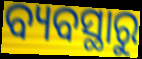
ବ୍ୟବସ୍ଥାରୁ